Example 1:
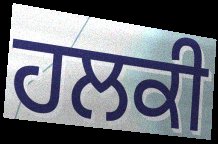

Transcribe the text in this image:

ਹਲਕੀ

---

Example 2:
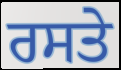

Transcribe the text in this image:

ਰਸਤੇ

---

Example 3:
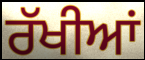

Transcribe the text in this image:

ਰੱਖੀਆਂ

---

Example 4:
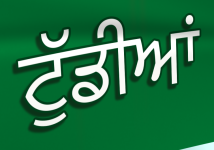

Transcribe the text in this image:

ਟੁੱਡੀਆਂ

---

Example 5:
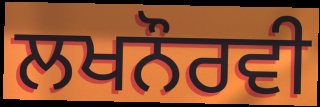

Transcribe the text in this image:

ਲਖਨੌਰਵੀ